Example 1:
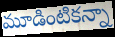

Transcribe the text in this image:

మూడింటికన్నా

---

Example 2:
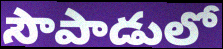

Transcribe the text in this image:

సౌపాడులో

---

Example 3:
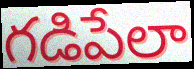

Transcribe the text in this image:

గడిపేలా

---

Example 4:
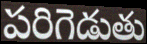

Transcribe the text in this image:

పరిగెడుతు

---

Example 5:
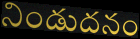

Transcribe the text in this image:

నిండుదనం